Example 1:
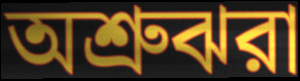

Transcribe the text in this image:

অশ্রুঝরা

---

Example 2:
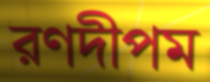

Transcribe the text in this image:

রণদীপম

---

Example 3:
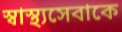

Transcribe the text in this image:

স্বাস্থ্যসেবাকে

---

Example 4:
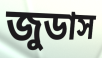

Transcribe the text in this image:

জুডাস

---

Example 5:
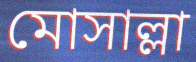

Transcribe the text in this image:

মোসাল্লা